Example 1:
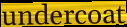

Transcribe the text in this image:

undercoat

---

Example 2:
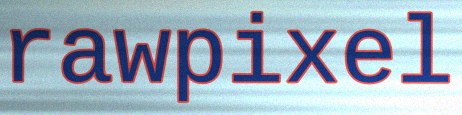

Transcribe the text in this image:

rawpixel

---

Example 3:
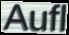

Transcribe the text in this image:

Aufl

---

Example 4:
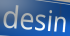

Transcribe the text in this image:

desin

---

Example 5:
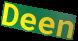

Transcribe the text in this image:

Deen